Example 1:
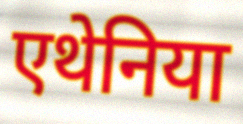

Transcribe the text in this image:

एथेनिया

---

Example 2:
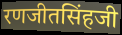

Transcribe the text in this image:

रणजीतसिंहजी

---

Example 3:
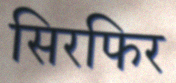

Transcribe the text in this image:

सिरफिर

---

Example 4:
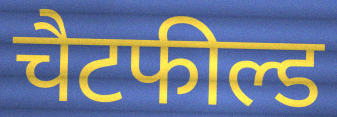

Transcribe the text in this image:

चैटफील्ड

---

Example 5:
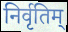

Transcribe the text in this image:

निर्वृतिम्